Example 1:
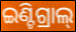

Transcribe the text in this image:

ଇଣ୍ଟିଗ୍ରାଲ୍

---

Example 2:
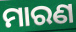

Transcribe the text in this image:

ମାରଣ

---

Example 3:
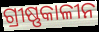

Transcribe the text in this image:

ଗ୍ରୀଷ୍ଣକାଳୀନ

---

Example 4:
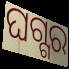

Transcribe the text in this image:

ଘଗ୍ଗର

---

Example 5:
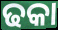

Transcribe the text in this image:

ଢକା